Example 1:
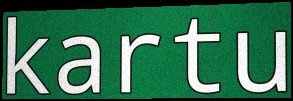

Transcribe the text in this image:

kartu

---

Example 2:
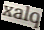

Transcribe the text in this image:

xalq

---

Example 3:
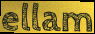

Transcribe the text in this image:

ellam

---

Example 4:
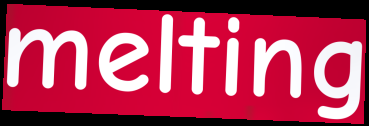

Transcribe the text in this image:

melting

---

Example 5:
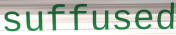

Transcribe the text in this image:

suffused